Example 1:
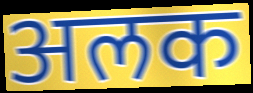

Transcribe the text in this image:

अलक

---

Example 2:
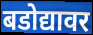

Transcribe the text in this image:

बडोद्यावर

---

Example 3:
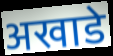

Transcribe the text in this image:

अखाडे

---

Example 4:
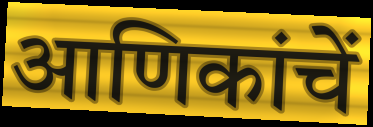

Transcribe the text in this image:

आणिकांचें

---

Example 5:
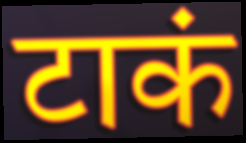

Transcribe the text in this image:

टाकं